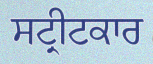
ਸਟ੍ਰੀਟਕਾਰ